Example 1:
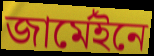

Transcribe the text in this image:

জার্মেইনে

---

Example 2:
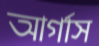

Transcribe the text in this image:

আর্গাস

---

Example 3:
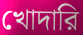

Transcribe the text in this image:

খোদারি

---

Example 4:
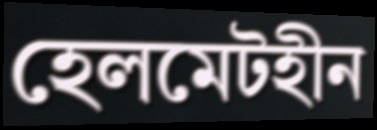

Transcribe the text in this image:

হেলমেটহীন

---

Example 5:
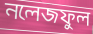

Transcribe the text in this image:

নলেজফুল